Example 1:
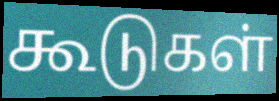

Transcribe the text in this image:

கூடுகள்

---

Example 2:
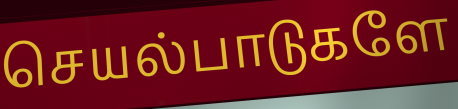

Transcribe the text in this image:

செயல்பாடுகளே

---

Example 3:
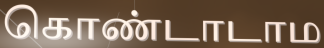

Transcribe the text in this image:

கொண்டாடாம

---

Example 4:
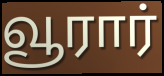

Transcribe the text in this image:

வூரார்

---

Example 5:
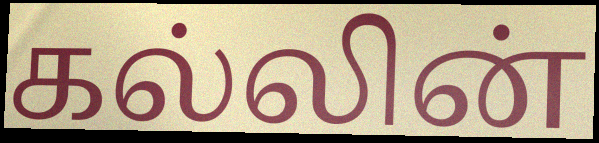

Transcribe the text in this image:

கல்லின்